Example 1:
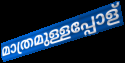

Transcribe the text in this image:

മാത്രമുള്ളപ്പോള്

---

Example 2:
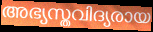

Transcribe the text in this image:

അഭ്യസ്തവിദ്യരായ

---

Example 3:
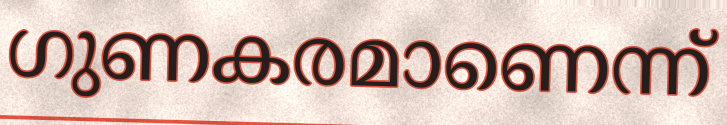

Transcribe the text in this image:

ഗുണകരമാണെന്ന്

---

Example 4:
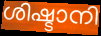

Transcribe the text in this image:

ശിഷ്ടാനി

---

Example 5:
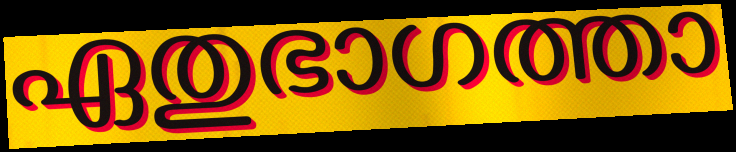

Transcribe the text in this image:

ഏതുഭാഗത്താ